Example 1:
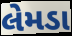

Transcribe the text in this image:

લેમડા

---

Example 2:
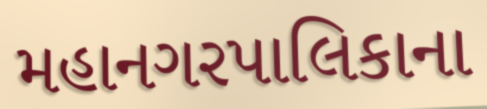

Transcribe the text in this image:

મહાનગરપાલિકાના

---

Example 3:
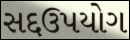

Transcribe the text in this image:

સદ્દઉપયોગ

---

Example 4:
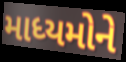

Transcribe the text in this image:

માધ્યમોને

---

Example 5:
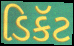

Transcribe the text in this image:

ડિકૅટ